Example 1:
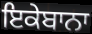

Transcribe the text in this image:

ਇਕੇਬਾਨਾ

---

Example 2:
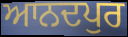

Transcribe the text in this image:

ਆਨਦਪੁਰ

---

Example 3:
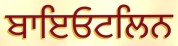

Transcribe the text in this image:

ਬਾਇਓਟਲਿਨ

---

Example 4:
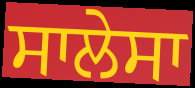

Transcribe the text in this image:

ਸਾਲੇਸਾ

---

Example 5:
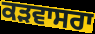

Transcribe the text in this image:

ਕੜਵਾਸਰਾ